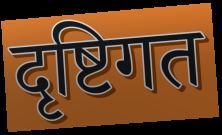
दृष्टिगत